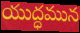
యుద్ధమున